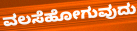
ವಲಸೆಹೋಗುವುದು